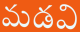
మడవి